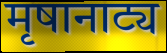
मृषानाट्य